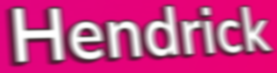
Hendrick